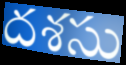
దశసు